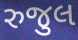
રુજુલ